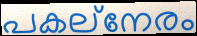
പകല്നേരം